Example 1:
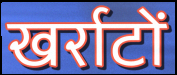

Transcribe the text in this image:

खर्राटों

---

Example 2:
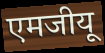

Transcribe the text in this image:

एमजीयू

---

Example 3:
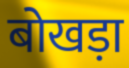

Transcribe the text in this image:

बोखड़ा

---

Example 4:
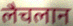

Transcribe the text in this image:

लैचलान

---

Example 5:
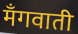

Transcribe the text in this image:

मँगवाती